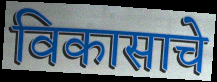
विकासाचे